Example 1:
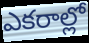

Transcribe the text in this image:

ఎకరాల్లో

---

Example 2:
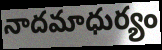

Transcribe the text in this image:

నాదమాధుర్యం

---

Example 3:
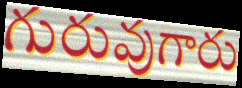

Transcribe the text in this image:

గురువుగారు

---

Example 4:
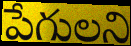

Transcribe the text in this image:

పేగులని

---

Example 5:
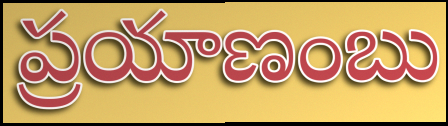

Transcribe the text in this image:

ప్రయాణంబు